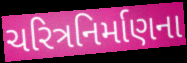
ચરિત્રનિર્માણના